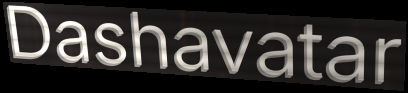
Dashavatar